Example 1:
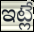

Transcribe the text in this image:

ఇట్లే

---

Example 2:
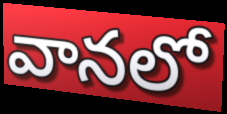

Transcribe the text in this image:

వానలో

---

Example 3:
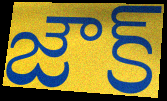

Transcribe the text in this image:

జౌక్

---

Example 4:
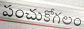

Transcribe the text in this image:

పంచుకోగలం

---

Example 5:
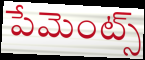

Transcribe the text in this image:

పేమెంట్స్